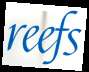
reefs